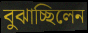
বুঝাচ্ছিলেন